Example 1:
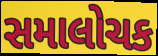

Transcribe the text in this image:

સમાલોચક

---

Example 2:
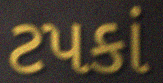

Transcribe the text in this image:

ટપકાં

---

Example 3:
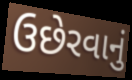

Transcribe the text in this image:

ઉછેરવાનું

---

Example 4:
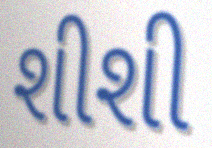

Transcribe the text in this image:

શીશી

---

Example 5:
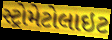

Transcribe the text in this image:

સ્ટ્રોમેટોલાઇટ